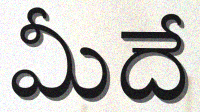
మీదే